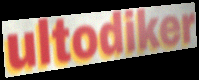
ultodiker